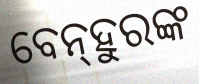
ବେନ୍‍ହୁରଙ୍କ